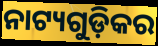
ନାଟ୍ୟଗୁଡ଼ିକର